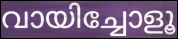
വായിച്ചോളൂ